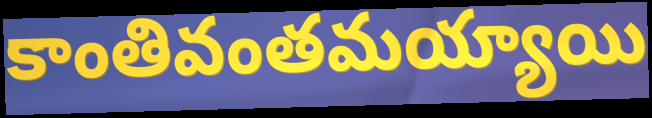
కాంతివంతమయ్యాయి